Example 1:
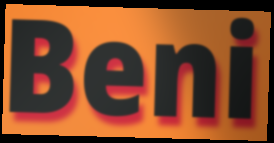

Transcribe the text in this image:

Beni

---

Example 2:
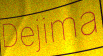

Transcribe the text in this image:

Dejima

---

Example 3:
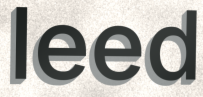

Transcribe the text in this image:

leed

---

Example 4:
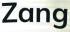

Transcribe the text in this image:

Zang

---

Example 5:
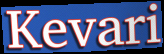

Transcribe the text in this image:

Kevari